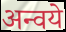
अन्वये